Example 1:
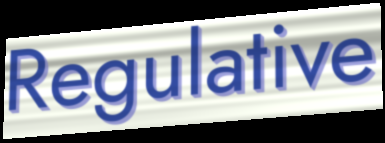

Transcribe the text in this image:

Regulative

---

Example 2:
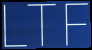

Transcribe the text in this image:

LTF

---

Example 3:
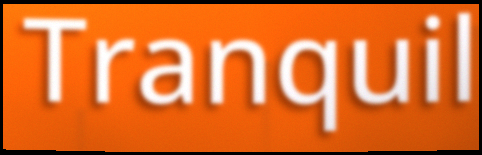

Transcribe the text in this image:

Tranquil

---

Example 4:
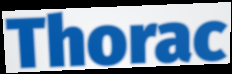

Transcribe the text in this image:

Thorac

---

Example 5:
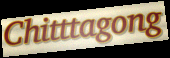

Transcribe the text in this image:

Chitttagong